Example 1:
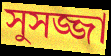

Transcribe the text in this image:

সুসজ্জা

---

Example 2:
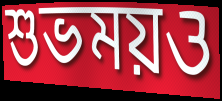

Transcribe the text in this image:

শুভময়ও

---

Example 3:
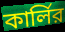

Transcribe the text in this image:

কার্লির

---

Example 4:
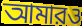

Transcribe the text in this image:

আমারও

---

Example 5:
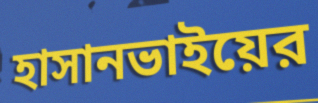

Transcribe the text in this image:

হাসানভাইয়ের